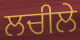
ਲਚੀਲੇ